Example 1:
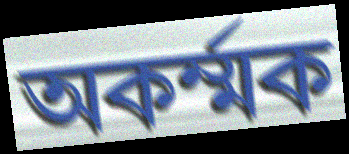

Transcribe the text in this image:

অকৰ্ম্মক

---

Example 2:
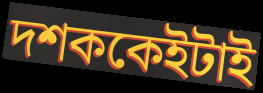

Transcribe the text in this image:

দশককেইটাই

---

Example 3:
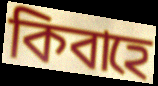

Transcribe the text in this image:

কিবাহে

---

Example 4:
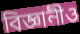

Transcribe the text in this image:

বিজ্ঞানীও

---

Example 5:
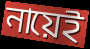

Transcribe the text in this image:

নায়েই